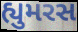
હ્યુમરસ